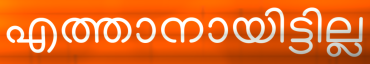
എത്താനായിട്ടില്ല